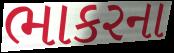
ભાકરના